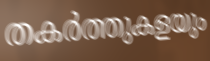
തകർത്തുകളയും